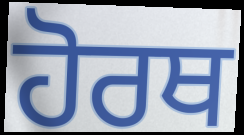
ਹੋਰਥ